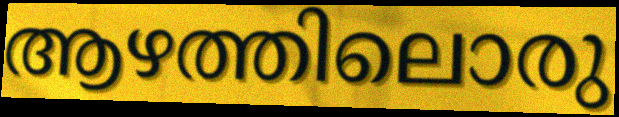
ആഴത്തിലൊരു